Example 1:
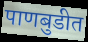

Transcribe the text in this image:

पाणबुडीत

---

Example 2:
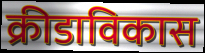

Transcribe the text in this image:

क्रीडाविकास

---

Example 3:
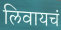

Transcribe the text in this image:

लिवायचं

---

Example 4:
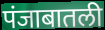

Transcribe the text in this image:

पंजाबातली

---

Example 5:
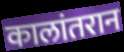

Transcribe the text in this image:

कालांतरान